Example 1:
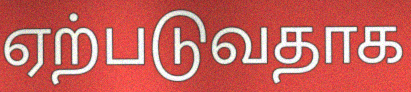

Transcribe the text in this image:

ஏற்படுவதாக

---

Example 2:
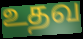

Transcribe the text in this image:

உதவ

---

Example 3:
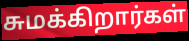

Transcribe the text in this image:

சுமக்கிறார்கள்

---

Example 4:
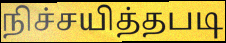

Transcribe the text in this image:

நிச்சயித்தபடி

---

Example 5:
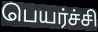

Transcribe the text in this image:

பெயர்ச்சி